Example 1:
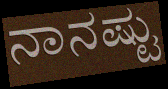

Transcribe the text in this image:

ನಾನಷ್ಟು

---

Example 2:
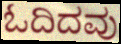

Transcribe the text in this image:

ಓದಿದವು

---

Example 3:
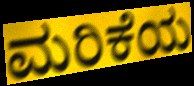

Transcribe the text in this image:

ಮರಿಕೆಯ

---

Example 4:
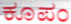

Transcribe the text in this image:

ಕೂಪಂ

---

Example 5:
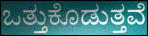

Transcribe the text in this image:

ಒತ್ತುಕೊಡುತ್ತವೆ